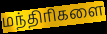
மந்திரிகளை